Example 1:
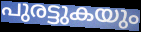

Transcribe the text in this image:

പുരട്ടുകയും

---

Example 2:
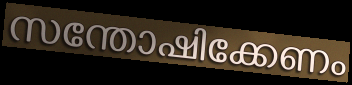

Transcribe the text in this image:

സന്തോഷിക്കേണം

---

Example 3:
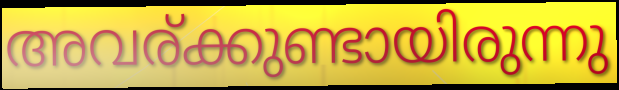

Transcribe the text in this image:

അവര്ക്കുണ്ടായിരുന്നു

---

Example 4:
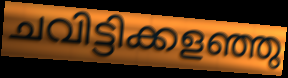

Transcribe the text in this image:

ചവിട്ടിക്കളഞ്ഞു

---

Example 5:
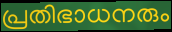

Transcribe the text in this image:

പ്രതിഭാധനരും